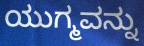
ಯುಗ್ಮವನ್ನು